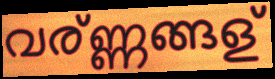
വര്ണ്ണങ്ങള്